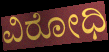
ವಿರೋಧಿ